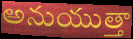
అనుయుత్తా